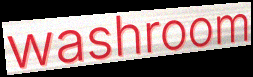
washroom